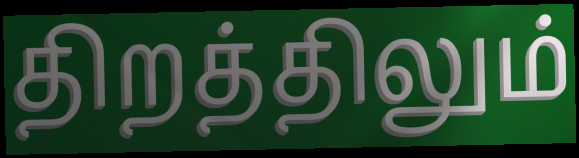
திறத்திலும்